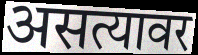
असत्यावर